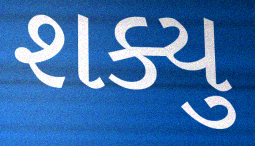
શક્યુ